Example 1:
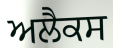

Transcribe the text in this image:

ਅਲੈਕਸ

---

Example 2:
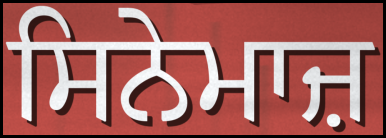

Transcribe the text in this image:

ਸਿਨੇਮਾਜ਼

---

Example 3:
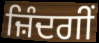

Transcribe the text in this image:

ਜ਼ਿੰਦਗੀਂ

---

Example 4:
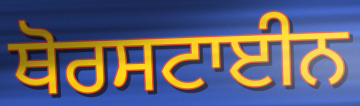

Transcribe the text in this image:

ਥੋਰਸਟਾਈਨ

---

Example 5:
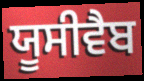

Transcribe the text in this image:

ਯੂਸੀਵੈਬ